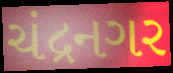
ચંદ્રનગર